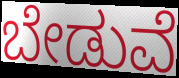
ಬೇಡುವೆ